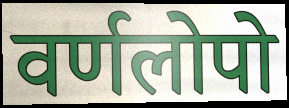
वर्णलोपो